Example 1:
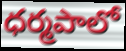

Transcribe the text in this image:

ధర్మపాలో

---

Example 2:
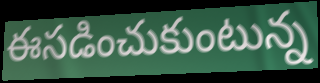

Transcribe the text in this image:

ఈసడించుకుంటున్న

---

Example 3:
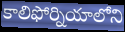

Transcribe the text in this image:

కాలిఫోర్నియాలోని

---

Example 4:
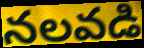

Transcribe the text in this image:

నలవడి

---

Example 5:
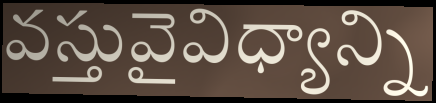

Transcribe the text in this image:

వస్తువైవిధ్యాన్ని